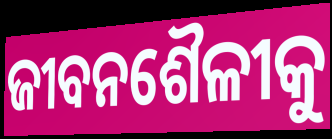
ଜୀବନଶୈଳୀକୁ